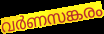
വർണസങ്കരം